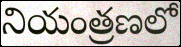
నియంత్రణలో